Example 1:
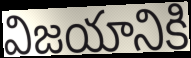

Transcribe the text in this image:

విజయానికి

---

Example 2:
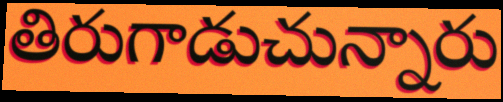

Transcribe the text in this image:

తిరుగాడుచున్నారు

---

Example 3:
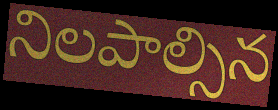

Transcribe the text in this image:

నిలపాల్సిన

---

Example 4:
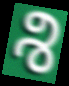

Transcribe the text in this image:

శి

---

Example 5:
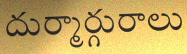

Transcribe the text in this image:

దుర్మార్గురాలు